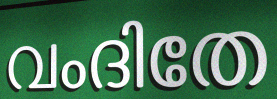
വംദിതേ